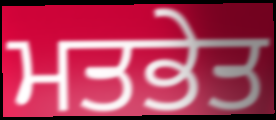
ਮਤਭੇਤ